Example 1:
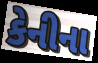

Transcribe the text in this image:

કેનીના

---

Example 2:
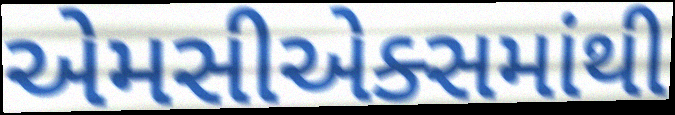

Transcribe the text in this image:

એમસીએક્સમાંથી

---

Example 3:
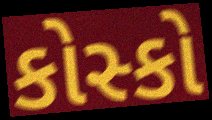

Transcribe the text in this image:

કોસ્કો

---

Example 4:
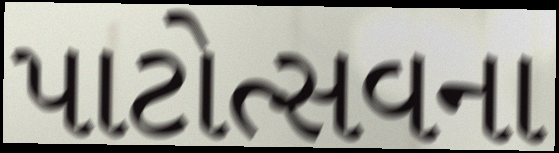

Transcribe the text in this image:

પાટોત્સવના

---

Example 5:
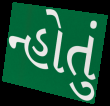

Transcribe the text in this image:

ન્હોતું